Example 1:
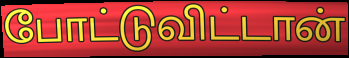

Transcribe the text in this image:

போட்டுவிட்டான்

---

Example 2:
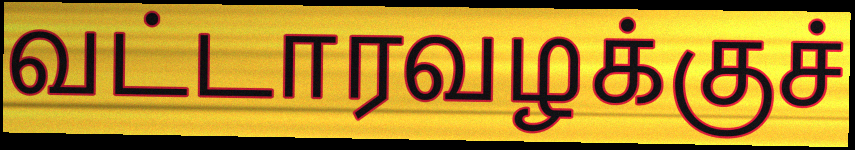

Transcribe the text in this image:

வட்டாரவழக்குச்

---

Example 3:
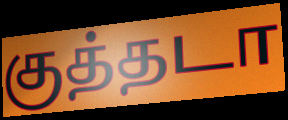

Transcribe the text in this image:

குத்தடா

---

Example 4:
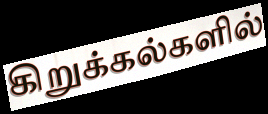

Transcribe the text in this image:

கிறுக்கல்களில்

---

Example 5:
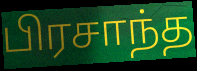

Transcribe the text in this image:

பிரசாந்த